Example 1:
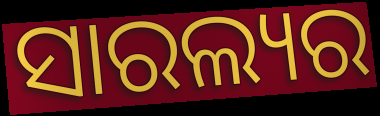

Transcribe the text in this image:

ସାରଲ୍ୟର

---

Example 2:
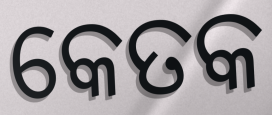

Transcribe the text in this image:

କେତକ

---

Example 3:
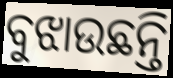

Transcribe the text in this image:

ବୁଝାଉଛନ୍ତି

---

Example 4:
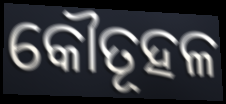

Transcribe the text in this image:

କୌତୂହଳ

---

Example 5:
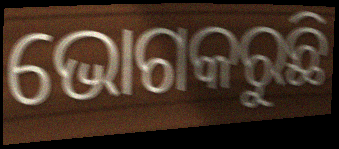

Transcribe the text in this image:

ଭୋଗକରୁଛି